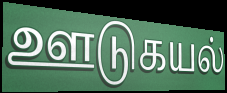
ஊடுகயல்